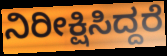
ನಿರೀಕ್ಷಿಸಿದ್ದರೆ